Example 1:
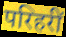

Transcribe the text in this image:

परिहरीं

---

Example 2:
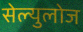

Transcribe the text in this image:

सेल्युलोज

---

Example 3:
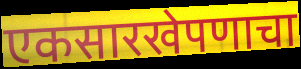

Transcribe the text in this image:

एकसारखेपणाचा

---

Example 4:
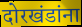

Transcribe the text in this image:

दोरखंडांना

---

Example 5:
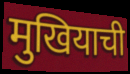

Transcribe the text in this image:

मुखियाची